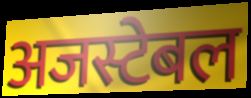
अजस्टेबल